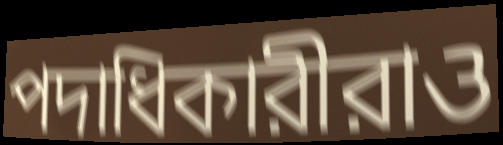
পদাধিকারীরাও